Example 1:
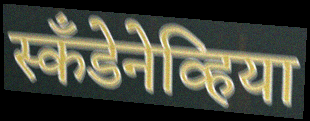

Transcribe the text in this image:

स्कॅंडेनेव्हिया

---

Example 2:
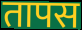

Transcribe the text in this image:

तापस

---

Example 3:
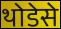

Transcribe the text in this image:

थोडेसे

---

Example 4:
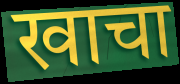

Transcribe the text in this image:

खाचा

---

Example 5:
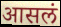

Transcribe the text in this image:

आसलं